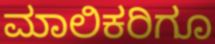
ಮಾಲಿಕರಿಗೂ